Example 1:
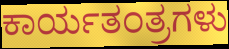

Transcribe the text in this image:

ಕಾರ್ಯತಂತ್ರಗಳು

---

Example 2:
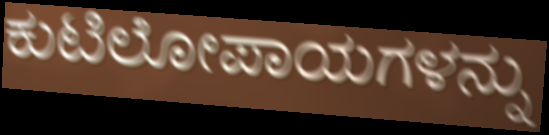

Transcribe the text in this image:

ಕುಟಿಲೋಪಾಯಗಳನ್ನು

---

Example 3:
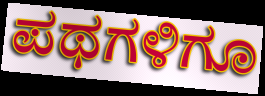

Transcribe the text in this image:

ಪಥಗಳಿಗೂ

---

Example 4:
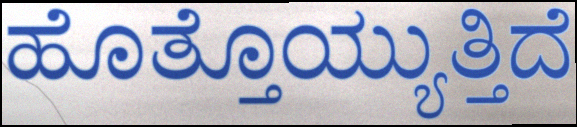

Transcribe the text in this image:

ಹೊತ್ತೊಯ್ಯುತ್ತಿದೆ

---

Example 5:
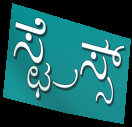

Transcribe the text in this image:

ಸ್ಟ್ರೆಸ್ಸ್